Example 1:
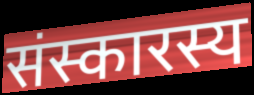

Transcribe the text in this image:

संस्कारस्य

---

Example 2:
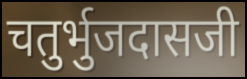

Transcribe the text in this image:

चतुर्भुजदासजी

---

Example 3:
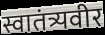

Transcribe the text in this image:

स्वातंत्र्यवीर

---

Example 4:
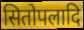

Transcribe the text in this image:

सितोपलादि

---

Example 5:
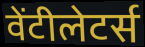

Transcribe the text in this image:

वेंटीलेटर्स